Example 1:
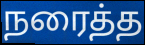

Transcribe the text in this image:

நரைத்த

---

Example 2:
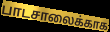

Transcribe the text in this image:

பாடசாலைக்காக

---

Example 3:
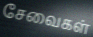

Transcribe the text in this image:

சேவைகள்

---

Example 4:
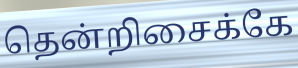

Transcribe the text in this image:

தென்றிசைக்கே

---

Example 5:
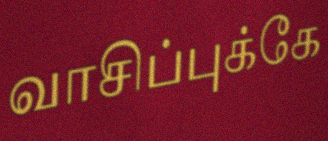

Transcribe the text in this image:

வாசிப்புக்கே